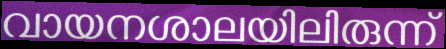
വായനശാലയിലിരുന്ന്